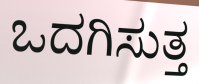
ಒದಗಿಸುತ್ತ